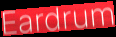
Eardrum